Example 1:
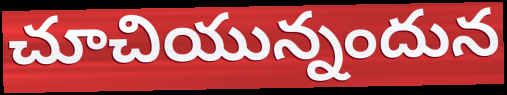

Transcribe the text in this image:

చూచియున్నందున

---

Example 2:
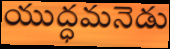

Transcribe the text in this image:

యుద్ధమనెడు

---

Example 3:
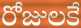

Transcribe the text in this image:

రోజులకే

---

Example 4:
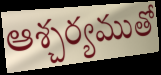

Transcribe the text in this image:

ఆశ్చర్యముతో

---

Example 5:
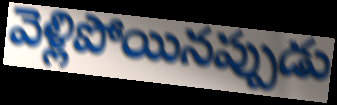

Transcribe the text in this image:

వెళ్లిపోయినప్పుడు